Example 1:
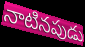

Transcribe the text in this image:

నాటినపుడు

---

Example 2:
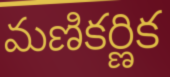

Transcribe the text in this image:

మణికర్ణిక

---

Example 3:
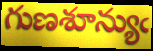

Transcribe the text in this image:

గుణశూన్యుఁ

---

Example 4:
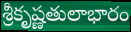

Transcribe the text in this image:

శ్రీకృష్ణతులాభారం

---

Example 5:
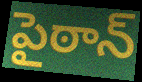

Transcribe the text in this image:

పైఠాన్